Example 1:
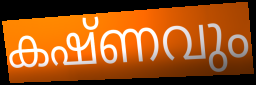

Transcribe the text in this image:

കഷ്ണവും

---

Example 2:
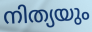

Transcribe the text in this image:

നിത്യയും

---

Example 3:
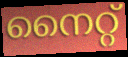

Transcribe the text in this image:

നൈറ്റ്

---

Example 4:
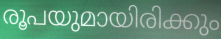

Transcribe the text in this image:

രൂപയുമായിരിക്കും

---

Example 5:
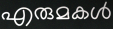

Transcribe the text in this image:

എരുമകൾ